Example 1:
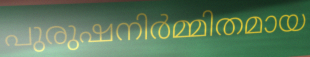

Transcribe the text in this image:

പുരുഷനിർമ്മിതമായ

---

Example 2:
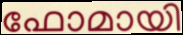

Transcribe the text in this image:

ഫോമായി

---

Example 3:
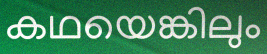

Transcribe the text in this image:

കഥയെങ്കിലും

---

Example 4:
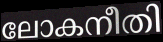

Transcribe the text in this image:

ലോകനീതി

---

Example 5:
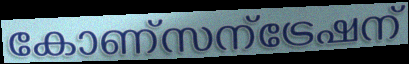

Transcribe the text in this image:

കോണ്സന്ട്രേഷന്